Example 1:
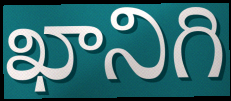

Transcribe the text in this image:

ఖానిగి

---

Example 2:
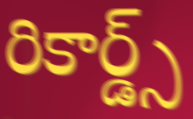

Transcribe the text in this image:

రికార్డ్స్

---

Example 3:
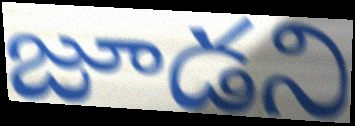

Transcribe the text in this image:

జూడని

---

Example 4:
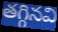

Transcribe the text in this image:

తగ్గినవి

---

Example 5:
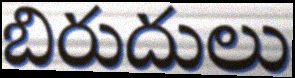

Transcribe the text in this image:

బిరుదులు